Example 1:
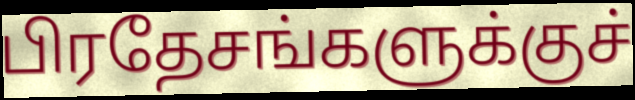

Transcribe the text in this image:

பிரதேசங்களுக்குச்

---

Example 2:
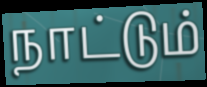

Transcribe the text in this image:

நாட்டும்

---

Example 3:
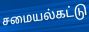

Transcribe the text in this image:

சமையல்கட்டு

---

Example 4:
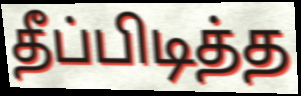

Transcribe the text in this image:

தீப்பிடித்த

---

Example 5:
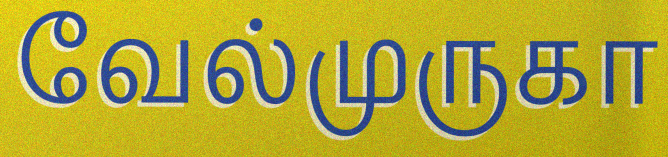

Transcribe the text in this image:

வேல்முருகா